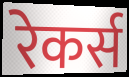
रेकर्स